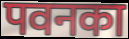
पवनका